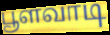
பூளவாடி